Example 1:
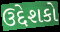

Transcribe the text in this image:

ઉદ્દેશકો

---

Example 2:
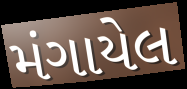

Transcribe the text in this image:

મંગાયેલ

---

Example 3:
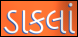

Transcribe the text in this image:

ડાકલાં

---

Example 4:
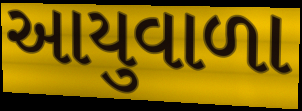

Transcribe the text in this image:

આયુવાળા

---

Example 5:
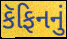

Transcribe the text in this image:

કૅફિનનું